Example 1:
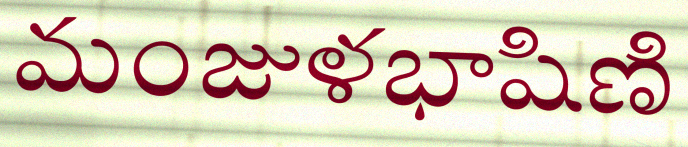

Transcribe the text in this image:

మంజుళభాషిణి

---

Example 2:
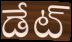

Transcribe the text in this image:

డేట్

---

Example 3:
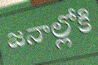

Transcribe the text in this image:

జనాల్లోకి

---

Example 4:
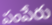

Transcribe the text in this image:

పంపేరు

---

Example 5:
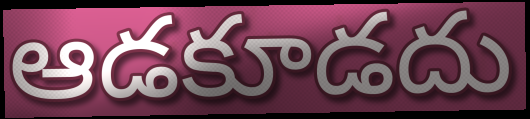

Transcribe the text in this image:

ఆడకూడదు